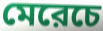
মেরেচে